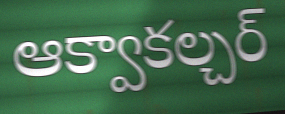
ఆక్వాకల్చర్